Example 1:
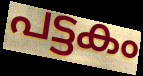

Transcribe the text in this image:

പട്ടകം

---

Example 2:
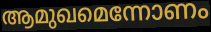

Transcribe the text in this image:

ആമുഖമെന്നോണം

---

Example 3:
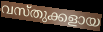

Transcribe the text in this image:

വസ്തുക്കളായ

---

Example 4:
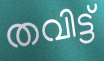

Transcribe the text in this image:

തവിട്ട്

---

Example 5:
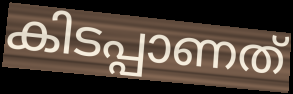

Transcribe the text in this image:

കിടപ്പാണത്